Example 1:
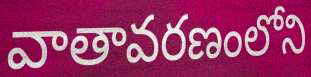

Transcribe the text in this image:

వాతావరణంలోని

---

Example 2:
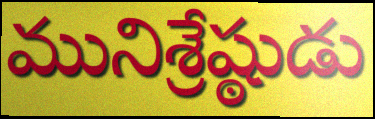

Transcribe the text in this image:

మునిశ్రేష్ఠుడు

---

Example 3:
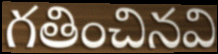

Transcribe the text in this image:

గతించినవి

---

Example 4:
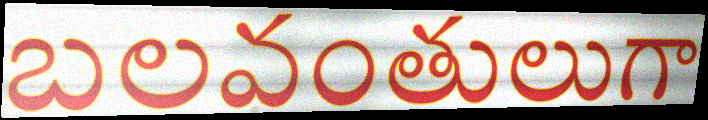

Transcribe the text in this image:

బలవంతులుగా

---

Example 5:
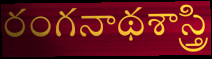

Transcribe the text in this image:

రంగనాథశాస్త్రి